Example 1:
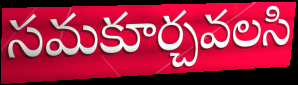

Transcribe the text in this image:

సమకూర్చవలసి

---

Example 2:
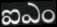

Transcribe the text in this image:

ఐఎం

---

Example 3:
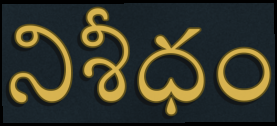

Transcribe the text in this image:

నిశీధం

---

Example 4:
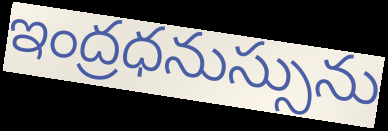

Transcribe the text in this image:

ఇంద్రధనుస్సును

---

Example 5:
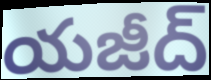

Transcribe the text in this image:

యజీద్